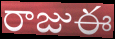
రాజుఈ